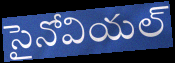
సైనోవియల్